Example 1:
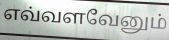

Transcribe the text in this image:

எவ்வளவேனும்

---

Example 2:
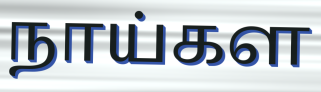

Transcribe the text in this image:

நாய்கள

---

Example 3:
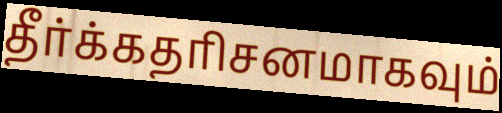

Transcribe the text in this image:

தீர்க்கதரிசனமாகவும்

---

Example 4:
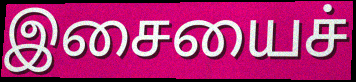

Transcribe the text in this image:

இசையைச்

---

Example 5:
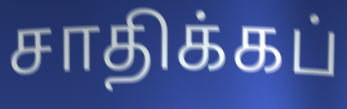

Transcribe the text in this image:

சாதிக்கப்